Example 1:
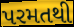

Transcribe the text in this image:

પરમતથી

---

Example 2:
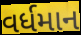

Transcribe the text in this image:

વર્ધમાન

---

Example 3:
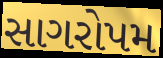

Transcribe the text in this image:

સાગરોપમ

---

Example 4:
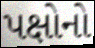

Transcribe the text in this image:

પક્ષોનો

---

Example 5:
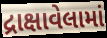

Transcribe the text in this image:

દ્રાક્ષાવેલામાં